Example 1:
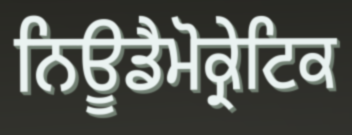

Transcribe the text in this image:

ਨਿਊਡੈਮੋਕ੍ਰੇਟਿਕ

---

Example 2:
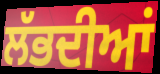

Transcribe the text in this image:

ਲੱਭਦੀਆਂ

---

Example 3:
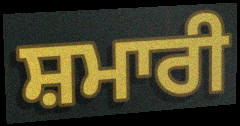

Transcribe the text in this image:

ਸ਼ਮਾਰੀ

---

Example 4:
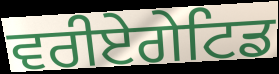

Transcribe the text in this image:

ਵਰੀਏਗੇਟਿਡ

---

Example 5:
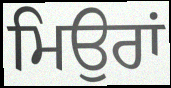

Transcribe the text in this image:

ਮਿਉਰਾਂ